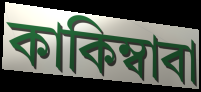
কাকিম্বাবা